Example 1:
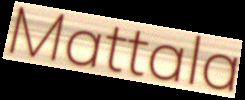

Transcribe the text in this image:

Mattala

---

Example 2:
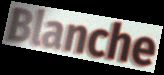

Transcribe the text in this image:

Blanche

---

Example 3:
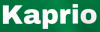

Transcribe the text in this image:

Kaprio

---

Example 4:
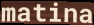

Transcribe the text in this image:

matina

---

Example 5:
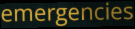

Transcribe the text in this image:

emergencies